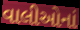
વાલીઓનાં